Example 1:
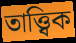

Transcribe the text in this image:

তাত্ত্বিক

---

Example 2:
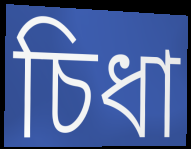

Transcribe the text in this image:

চিধা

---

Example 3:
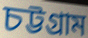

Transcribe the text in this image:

চট্টগ্ৰাম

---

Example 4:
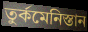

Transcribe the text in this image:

তুৰ্কমেনিস্তান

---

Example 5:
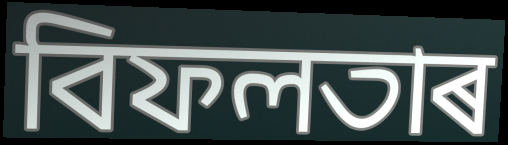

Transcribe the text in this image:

বিফলতাৰ